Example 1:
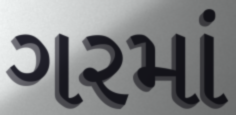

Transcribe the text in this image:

ગરમાં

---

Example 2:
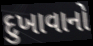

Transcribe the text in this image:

દુખાવાનો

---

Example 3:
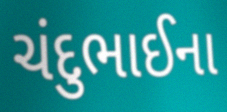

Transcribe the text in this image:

ચંદુભાઈના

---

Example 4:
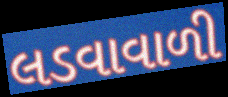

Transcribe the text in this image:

લડવાવાળી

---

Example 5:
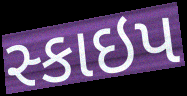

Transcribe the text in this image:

સ્કાઇપ